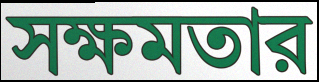
সক্ষমতার